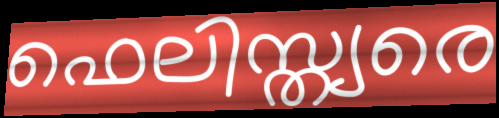
ഫെലിസ്ത്യരെ